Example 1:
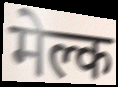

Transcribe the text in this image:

मेल्क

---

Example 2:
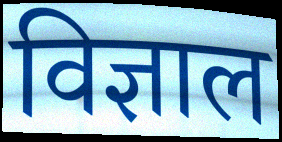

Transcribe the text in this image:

विज्ञाल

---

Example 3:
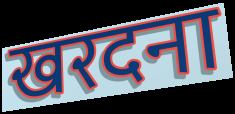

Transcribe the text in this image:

खरदना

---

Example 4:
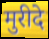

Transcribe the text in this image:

मुरीदे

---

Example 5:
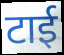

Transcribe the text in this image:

टाई